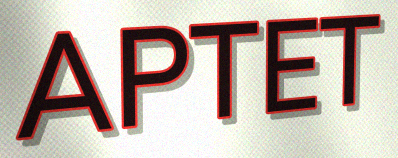
APTET